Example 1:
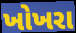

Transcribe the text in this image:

ખોખરા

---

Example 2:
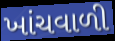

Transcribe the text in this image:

ખાંચવાળી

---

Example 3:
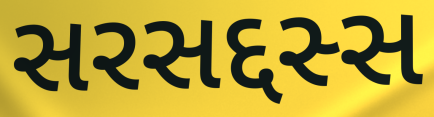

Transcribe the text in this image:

સરસદ્દસ્સ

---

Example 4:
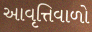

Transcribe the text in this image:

આવૃત્તિવાળો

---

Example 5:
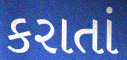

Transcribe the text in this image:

કરાતાં